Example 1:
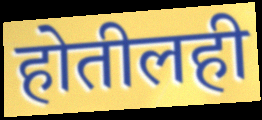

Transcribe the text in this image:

होतीलही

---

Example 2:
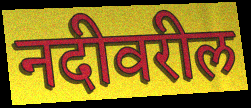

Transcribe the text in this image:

नदीवरील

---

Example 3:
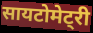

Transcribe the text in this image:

सायटोमेट्री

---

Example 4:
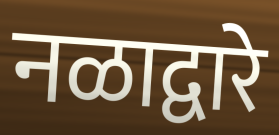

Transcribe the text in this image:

नळाद्वारे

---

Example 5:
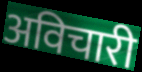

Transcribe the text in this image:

अविचारी